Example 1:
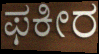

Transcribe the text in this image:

ಫಕೀರ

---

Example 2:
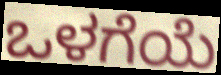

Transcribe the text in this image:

ಒಳಗೆಯೆ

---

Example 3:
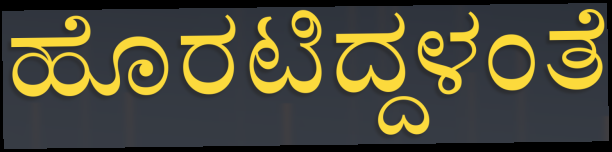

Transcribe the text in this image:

ಹೊರಟಿದ್ದಳಂತೆ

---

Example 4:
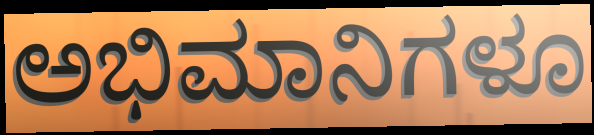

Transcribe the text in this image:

ಅಭಿಮಾನಿಗಳೂ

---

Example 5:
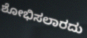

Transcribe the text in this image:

ಶೋಭಿಸಲಾರದು